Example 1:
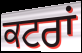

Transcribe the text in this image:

ਕਟਰਾਂ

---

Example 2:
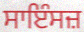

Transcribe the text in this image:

ਸਾਇੰਸਜ਼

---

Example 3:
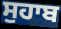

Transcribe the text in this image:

ਸੁਹਾਬ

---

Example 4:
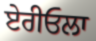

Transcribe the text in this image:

ਏਰੀਓਲਾ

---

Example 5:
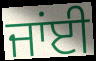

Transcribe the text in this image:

ਜਾਂਈ